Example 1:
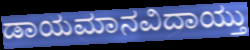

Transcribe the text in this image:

ಡಾಯಮಾನವಿದಾಯ್ತು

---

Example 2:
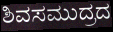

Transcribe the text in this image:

ಶಿವಸಮುದ್ರದ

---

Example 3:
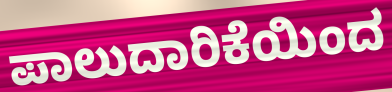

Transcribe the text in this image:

ಪಾಲುದಾರಿಕೆಯಿಂದ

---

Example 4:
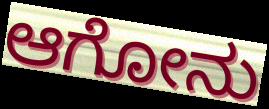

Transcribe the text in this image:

ಆಗೋನು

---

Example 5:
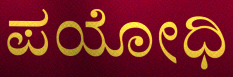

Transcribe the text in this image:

ಪಯೋಧಿ